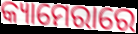
କ୍ୟାମେରାରେ